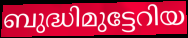
ബുദ്ധിമുട്ടേറിയ